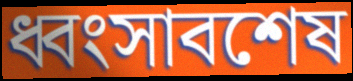
ধ্বংসাবশেষ